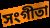
সংগীতা